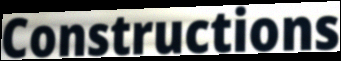
Constructions